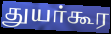
துயர்கூர